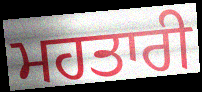
ਮਹਤਾਰੀ